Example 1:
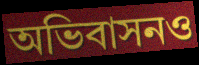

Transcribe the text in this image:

অভিবাসনও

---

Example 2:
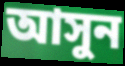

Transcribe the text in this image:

আসুন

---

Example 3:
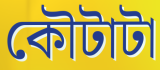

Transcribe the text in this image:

কৌটাটা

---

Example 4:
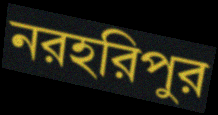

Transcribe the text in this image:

নরহরিপুর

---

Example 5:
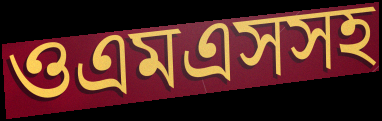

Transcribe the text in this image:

ওএমএসসহ